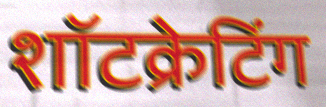
शॉटक्रेटिंग